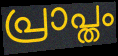
പ്രാപ്തം